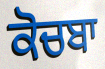
ਕੋਚਬਾ